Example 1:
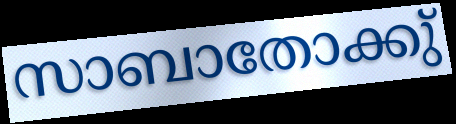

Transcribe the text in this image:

സാബാതോക്കു്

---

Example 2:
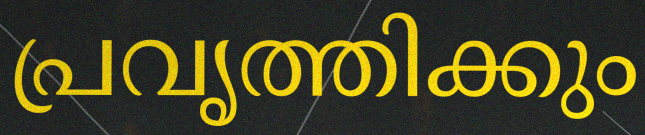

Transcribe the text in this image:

പ്രവൃത്തിക്കും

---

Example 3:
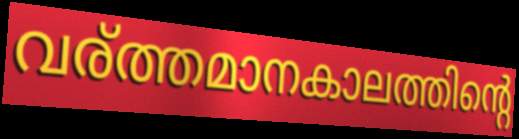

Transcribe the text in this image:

വര്ത്തമാനകാലത്തിന്റെ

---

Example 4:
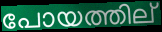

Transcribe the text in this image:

പോയത്തില്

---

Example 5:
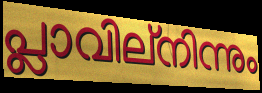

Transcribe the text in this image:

പ്ലാവില്നിന്നും